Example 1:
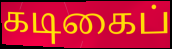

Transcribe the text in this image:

கடிகைப்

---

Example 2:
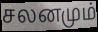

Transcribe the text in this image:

சலனமும்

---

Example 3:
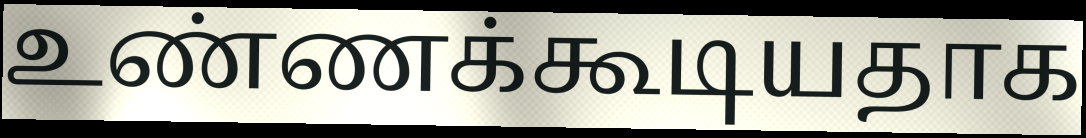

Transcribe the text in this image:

உண்ணக்கூடியதாக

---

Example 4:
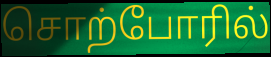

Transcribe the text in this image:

சொற்போரில்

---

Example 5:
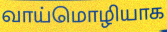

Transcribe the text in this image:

வாய்மொழியாக